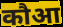
कौआ